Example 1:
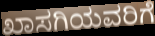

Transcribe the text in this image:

ಖಾಸಗಿಯವರಿಗೆ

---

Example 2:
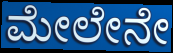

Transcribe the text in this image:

ಮೇಲೇನೇ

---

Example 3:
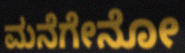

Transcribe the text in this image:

ಮನೆಗೇನೋ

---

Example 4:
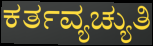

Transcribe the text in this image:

ಕರ್ತವ್ಯಚ್ಯುತಿ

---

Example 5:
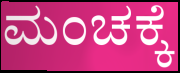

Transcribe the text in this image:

ಮಂಚಕ್ಕೆ